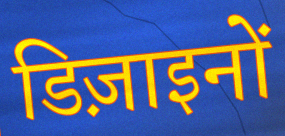
डिज़ाइनों